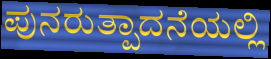
ಪುನರುತ್ಪಾದನೆಯಲ್ಲಿ